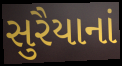
સુરૈયાનાં